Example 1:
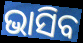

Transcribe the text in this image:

ଭାସିବ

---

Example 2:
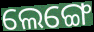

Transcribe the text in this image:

ଲେଙ୍ଗେ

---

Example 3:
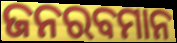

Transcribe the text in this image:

ଜନରବମାନ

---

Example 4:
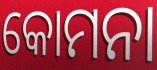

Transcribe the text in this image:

କୋମନା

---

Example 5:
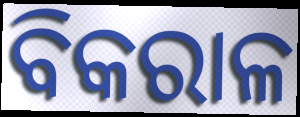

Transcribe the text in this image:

ବିକରାଳ